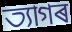
ত্যাগৰ